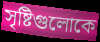
সৃষ্টিগুলোকে